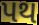
પથ